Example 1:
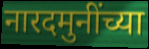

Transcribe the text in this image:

नारदमुनींच्या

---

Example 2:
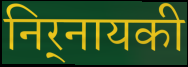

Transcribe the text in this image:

निर्नायकी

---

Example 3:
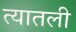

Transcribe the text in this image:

त्यातली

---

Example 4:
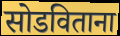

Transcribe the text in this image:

सोडविताना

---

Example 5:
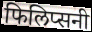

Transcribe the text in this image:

फिलिप्सनी